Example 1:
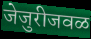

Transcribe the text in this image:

जेजुरीजवळ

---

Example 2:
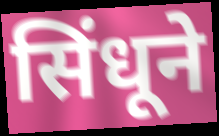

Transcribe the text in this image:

सिंधूने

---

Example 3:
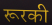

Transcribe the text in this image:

रूरकी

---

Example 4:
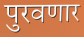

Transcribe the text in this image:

पुरवणार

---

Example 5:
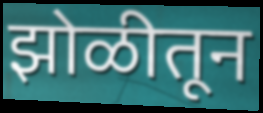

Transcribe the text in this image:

झोळीतून